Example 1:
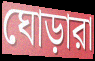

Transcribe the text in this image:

ঘোড়ারা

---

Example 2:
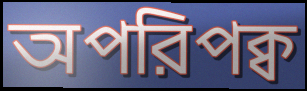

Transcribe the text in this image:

অপরিপক্ব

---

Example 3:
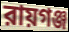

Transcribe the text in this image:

রায়গঞ্জ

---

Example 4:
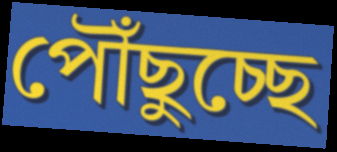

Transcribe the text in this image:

পৌঁছুচ্ছে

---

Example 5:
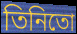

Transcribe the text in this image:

তিনিতো